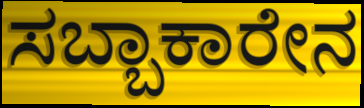
ಸಬ್ಬಾಕಾರೇನ